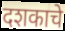
दशकाचे